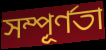
সম্পূর্ণতা